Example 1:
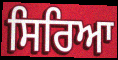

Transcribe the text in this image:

ਸਿਰਿਆ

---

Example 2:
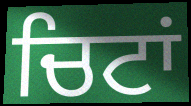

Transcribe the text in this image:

ਚਿਟਾਂ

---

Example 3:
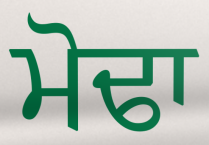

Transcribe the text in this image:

ਮੋਢਾ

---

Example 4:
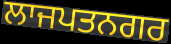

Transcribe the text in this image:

ਲਾਜਪਤਨਗਰ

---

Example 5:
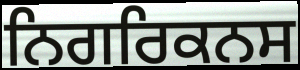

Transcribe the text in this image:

ਨਿਗਰਿਕਨਸ